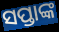
ସପ୍ତାଙ୍କ